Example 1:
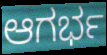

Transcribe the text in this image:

ಆಗರ್ಭ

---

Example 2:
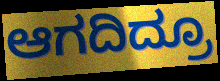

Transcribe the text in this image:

ಆಗದಿದ್ರೂ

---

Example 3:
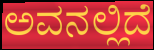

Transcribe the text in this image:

ಅವನಲ್ಲಿದೆ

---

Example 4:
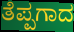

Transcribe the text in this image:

ತೆಪ್ಪಗಾದ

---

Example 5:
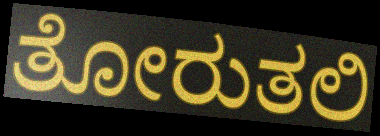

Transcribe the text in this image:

ತೋರುತಲಿ